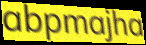
abpmajha